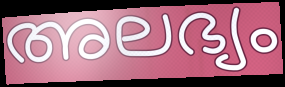
അലഭ്യം